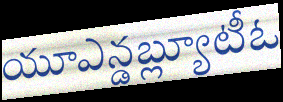
యూఎన్డబ్ల్యూటీఓ